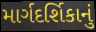
માર્ગદર્શિકાનું